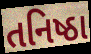
તનિષ્ઠા